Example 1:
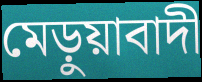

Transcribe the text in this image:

মেড়ুয়াবাদী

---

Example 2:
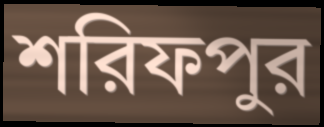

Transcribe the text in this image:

শরিফপুর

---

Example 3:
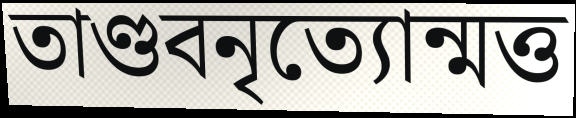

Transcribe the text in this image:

তাণ্ডবনৃত্যোন্মত্ত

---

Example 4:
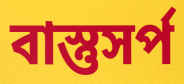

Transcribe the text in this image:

বাস্তুসর্প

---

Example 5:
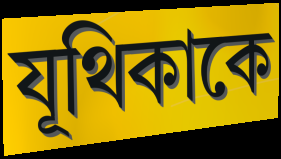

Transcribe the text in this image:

যূথিকাকে